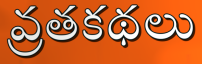
వ్రతకథలు